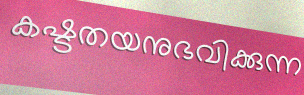
കഷ്ടതയനുഭവിക്കുന്ന